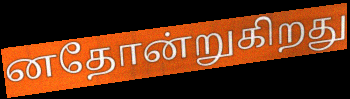
னதோன்றுகிறது